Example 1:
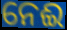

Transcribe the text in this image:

ନେଈ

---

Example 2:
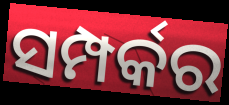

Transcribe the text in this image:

ସମ୍ପର୍କର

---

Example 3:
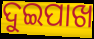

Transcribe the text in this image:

ଦୁଇପାଖ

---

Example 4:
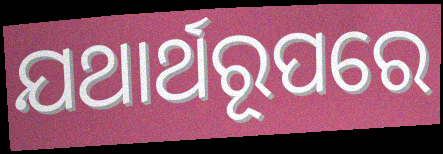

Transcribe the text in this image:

ଯଥାର୍ଥରୂପରେ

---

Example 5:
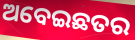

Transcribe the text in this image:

ଅବେଇଛତର